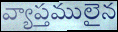
వ్యాప్తములైన